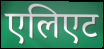
एलिएट